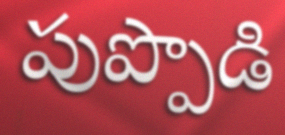
పుప్పొడి